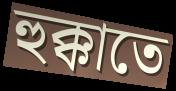
হুক্কাতে